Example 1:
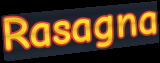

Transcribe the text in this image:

Rasagna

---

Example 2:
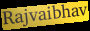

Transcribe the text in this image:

Rajvaibhav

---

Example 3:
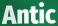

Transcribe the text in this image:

Antic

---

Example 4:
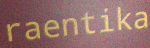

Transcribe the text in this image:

raentika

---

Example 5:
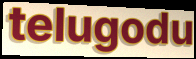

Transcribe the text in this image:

telugodu